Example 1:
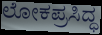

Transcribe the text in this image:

ಲೋಕಪ್ರಸಿದ್ಧ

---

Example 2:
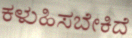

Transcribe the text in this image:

ಕಳುಹಿಸಬೇಕಿದೆ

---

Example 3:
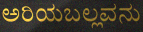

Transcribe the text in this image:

ಅರಿಯಬಲ್ಲವನು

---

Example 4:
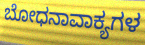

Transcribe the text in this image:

ಬೋಧನಾವಾಕ್ಯಗಳ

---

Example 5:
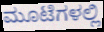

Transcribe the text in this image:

ಮೂಟೆಗಳಲ್ಲಿ